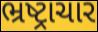
ભ્રષ્ટ્રાચાર